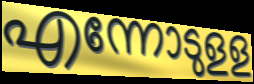
എന്നോടുളള